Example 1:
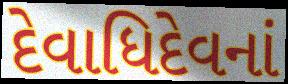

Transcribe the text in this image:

દેવાધિદેવનાં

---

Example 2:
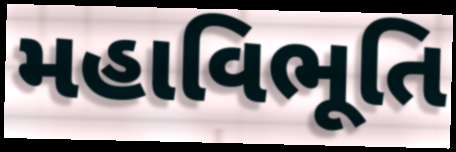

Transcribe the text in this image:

મહાવિભૂતિ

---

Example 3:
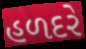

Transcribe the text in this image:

હળદરે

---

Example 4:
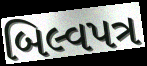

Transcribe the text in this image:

બિલ્વપત્ર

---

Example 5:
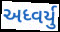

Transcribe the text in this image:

અધ્વર્યુ